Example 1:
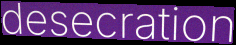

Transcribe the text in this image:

desecration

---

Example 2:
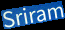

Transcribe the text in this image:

Sriram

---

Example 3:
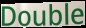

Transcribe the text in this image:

Double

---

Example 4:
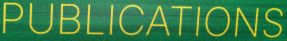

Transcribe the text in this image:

PUBLICATIONS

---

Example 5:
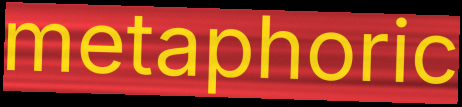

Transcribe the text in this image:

metaphoric